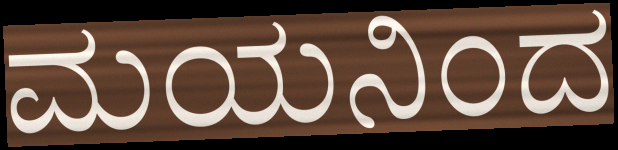
ಮಯನಿಂದ